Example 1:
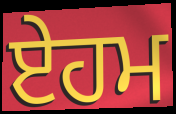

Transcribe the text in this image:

ਏਹਮ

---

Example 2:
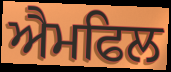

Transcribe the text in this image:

ਐਮਫਿਲ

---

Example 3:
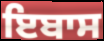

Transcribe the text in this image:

ਇਬਾਸ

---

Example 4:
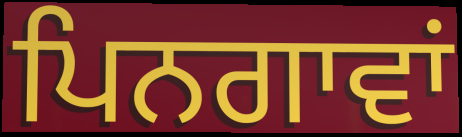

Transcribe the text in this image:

ਪਿਨਗਾਵਾਂ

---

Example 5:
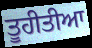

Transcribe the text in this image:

ਤੂਹੀਤੀਆ